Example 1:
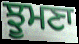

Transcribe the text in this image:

ਝੂਮਣਾ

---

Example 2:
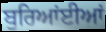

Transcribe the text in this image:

ਬੁਰਿਆਂਈਆਂ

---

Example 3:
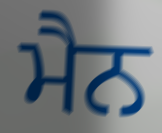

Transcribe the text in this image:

ਮੈਨ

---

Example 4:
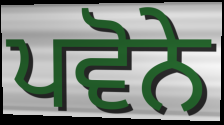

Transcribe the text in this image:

ਪਵੋਨੇ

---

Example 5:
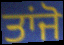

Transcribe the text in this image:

ਤਾਂਜੋ